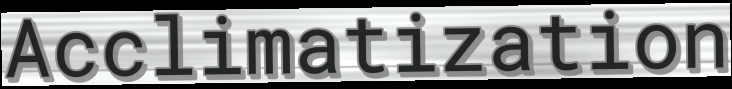
Acclimatization